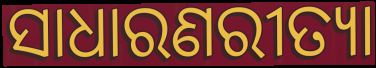
ସାଧାରଣରୀତ୍ୟା